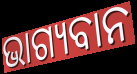
ଭାଗ୍ୟବାନ